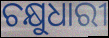
ଚକ୍ଷୁଧାରୀ